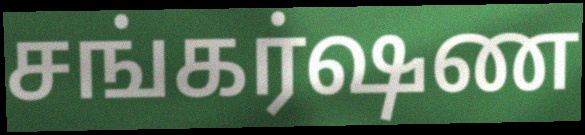
சங்கர்ஷண